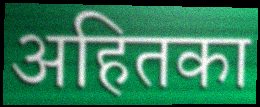
अहितका